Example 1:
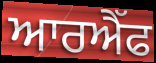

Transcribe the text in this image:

ਆਰਐੱਫ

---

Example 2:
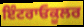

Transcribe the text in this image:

ਇੰਟਰਾਓਕੂਲਰ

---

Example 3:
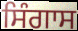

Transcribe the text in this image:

ਸਿੰਗਾਸ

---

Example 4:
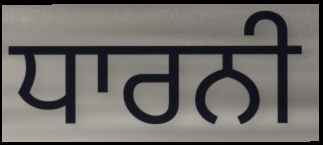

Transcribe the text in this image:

ਧਾਰਨੀ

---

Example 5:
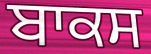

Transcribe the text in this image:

ਬਾਕਸ